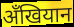
अँखियान